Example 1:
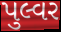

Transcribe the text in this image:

પુલ્વર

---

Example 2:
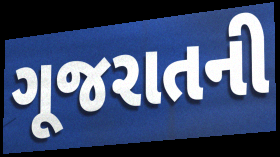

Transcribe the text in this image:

ગૂજરાતની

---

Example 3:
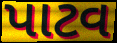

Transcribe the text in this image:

પાટવ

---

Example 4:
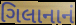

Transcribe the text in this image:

ગિલાનાનં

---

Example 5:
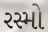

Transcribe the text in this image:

રસ્મો